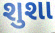
શુશા